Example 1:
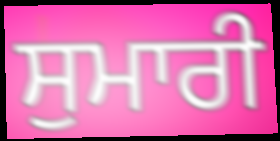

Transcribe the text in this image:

ਸੁਮਾਰੀ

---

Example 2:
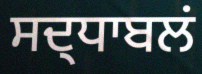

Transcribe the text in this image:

ਸਦ੍ਧਾਬਲਂ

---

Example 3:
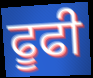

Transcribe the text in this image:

ਫੂਫੀ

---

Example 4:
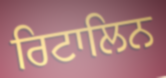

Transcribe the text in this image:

ਰਿਟਾਲਿਨ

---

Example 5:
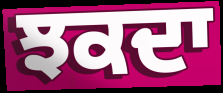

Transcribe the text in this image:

ਝਕਦਾ